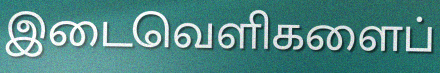
இடைவெளிகளைப்